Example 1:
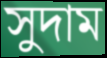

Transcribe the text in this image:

সুদাম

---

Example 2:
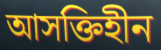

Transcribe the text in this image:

আসক্তিহীন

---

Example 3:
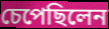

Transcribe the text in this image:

চেপেছিলেন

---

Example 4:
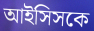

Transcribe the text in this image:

আইসিসকে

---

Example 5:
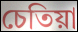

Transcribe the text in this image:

চেতিয়া